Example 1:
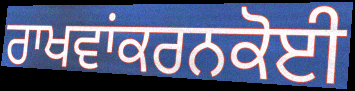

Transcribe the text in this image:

ਰਾਖਵਾਂਕਰਨਕੋਈ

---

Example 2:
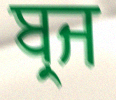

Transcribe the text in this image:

ਬ੍ਰਜ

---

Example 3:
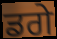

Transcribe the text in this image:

ਡਗੇ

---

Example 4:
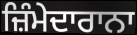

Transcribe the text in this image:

ਜ਼ਿੰਮੇਦਾਰਾਨਾ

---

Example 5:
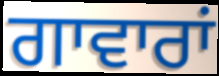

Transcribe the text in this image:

ਗਾਵਾਰਾਂ